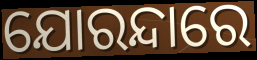
ଯୋରନ୍ଦାରେ